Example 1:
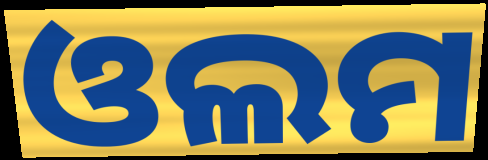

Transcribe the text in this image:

ଓଲମ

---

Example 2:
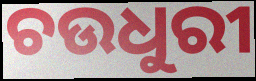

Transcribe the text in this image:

ଚଉଧୁରୀ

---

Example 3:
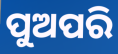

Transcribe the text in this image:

ପୁଅପରି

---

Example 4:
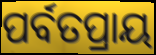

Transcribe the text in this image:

ପର୍ବତପ୍ରାୟ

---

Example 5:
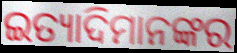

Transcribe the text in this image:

ଇତ୍ୟାଦିମାନଙ୍କର